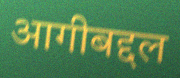
आगीबद्दल